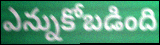
ఎన్నుకోబడింది